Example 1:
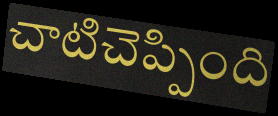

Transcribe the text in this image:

చాటిచెప్పింది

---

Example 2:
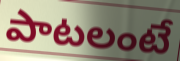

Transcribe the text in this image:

పాటలంటే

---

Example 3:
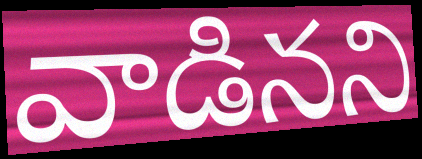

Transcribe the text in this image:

వాడినని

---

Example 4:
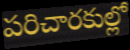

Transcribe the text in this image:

పరిచారకుల్లో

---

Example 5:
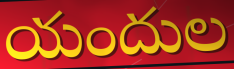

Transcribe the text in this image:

యందుల